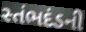
સ્તંભદંડની